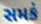
સમકં